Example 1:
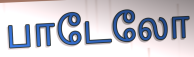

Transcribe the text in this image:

பாடேலோ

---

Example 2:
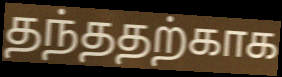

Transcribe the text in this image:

தந்ததற்காக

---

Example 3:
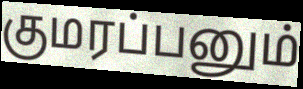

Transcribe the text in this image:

குமரப்பனும்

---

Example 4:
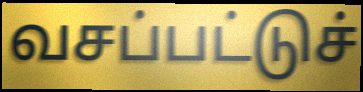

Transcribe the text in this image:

வசப்பட்டுச்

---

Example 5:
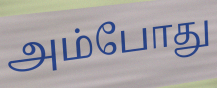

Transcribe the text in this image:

அம்போது